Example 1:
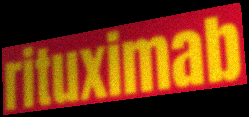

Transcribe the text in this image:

rituximab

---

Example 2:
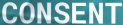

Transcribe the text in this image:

CONSENT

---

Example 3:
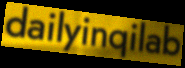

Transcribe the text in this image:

dailyinqilab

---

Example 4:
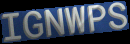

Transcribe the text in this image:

IGNWPS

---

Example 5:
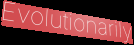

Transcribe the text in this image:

Evolutionarily